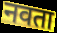
नवता